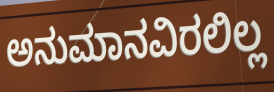
ಅನುಮಾನವಿರಲಿಲ್ಲ